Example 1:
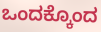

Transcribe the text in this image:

ಒಂದಕ್ಕೊಂದ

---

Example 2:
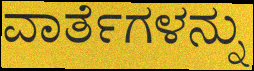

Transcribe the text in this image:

ವಾರ್ತೆಗಳನ್ನು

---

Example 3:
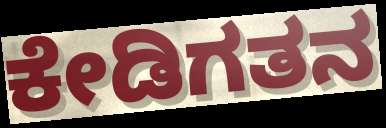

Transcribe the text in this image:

ಕೇಡಿಗತನ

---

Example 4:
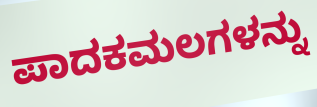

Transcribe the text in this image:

ಪಾದಕಮಲಗಳನ್ನು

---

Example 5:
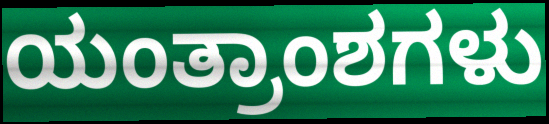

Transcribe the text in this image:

ಯಂತ್ರಾಂಶಗಳು